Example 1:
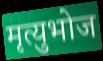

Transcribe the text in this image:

मृत्युभोज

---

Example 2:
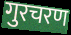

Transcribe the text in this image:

गुरचरण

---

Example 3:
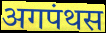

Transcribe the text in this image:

अगपंथस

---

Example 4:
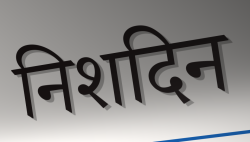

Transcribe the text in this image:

निशदिन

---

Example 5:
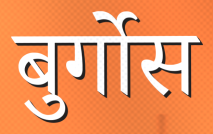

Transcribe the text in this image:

बुर्गोस